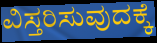
ವಿಸ್ತರಿಸುವುದಕ್ಕೆ